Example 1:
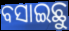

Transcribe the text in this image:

ବସାଇଛୁ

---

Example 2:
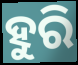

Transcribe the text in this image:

ହୁରି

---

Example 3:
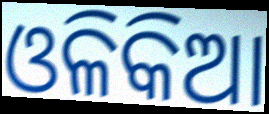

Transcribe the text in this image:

ଓଳିକିଆ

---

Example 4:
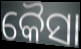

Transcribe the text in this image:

କୈସା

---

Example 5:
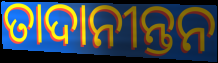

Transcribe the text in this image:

ତାଦାନୀନ୍ତନ